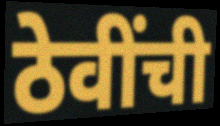
ठेवींची